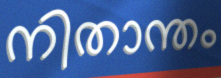
നിതാന്തം